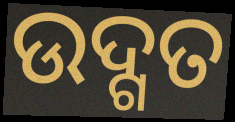
ଉଦ୍ଗତ